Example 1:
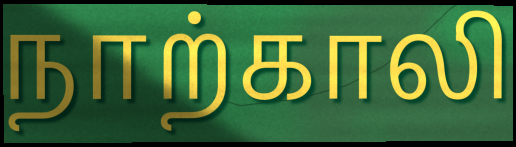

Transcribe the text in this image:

நாற்காலி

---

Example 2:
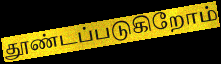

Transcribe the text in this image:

தூண்டப்படுகிறோம்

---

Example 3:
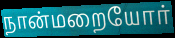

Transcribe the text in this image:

நான்மறையோர்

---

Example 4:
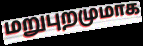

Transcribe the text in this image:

மறுபுறமுமாக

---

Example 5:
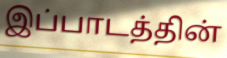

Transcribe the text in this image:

இப்பாடத்தின்